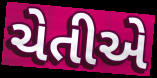
ચેતીએ